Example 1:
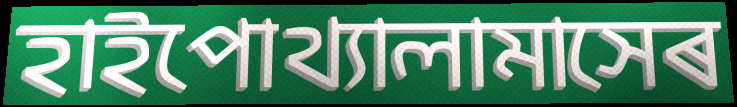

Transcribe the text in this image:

হাইপোথ্যালামাসেৰ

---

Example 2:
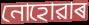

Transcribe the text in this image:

নোহোৱাৰ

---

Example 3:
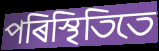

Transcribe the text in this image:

পৰিস্থিতিতে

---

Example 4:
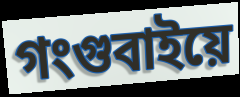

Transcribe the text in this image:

গংগুবাইয়ে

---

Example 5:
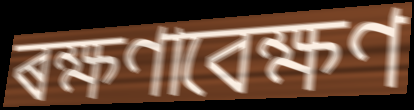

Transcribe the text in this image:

ৰক্ষণাবেক্ষণ